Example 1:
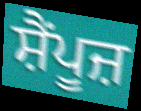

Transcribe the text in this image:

ਸ਼ੈਂਪੂਜ਼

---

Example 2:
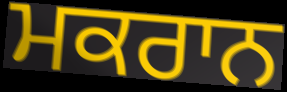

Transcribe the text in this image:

ਮਕਰਾਨ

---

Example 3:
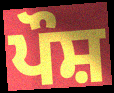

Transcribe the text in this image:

ਪੌਸ਼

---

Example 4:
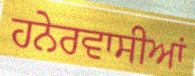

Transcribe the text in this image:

ਹਨੇਰਵਾਸੀਆਂ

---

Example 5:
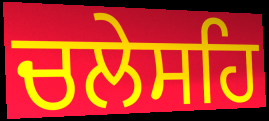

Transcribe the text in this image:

ਚਲੇਸਹਿ